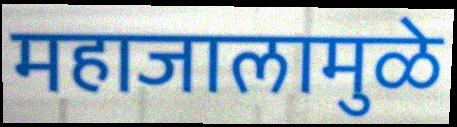
महाजालामुळे